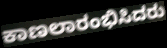
ಕಾಣಲಾರಂಭಿಸಿದರು